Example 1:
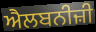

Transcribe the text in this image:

ਐਲਬਨੀਜ਼ੀ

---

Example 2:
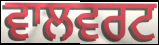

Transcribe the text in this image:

ਵਾਲਵਰਟ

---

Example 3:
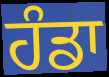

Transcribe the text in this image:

ਹੰਡਾ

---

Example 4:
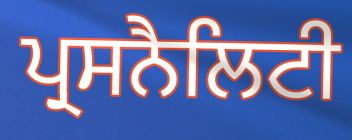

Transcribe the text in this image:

ਪ੍ਰਸਨੈਲਿਟੀ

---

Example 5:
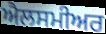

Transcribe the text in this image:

ਐਲਸਮੀਅਰ